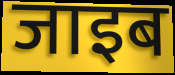
जाइब